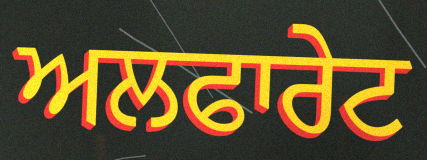
ਅਲਫਾਰੇਟ